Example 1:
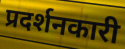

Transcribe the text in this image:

प्रदर्शनकारी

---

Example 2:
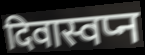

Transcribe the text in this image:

दिवास्‍वप्‍न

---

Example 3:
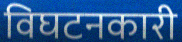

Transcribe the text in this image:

विघटनकारी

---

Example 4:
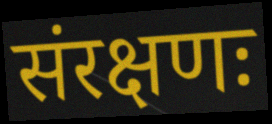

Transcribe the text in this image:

संरक्षणः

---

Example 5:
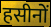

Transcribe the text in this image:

हसीनों